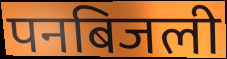
पनबिजली